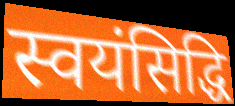
स्वयंसिद्धि